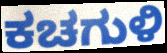
ಕಚಗುಳಿ